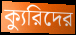
ক্যুরিদের